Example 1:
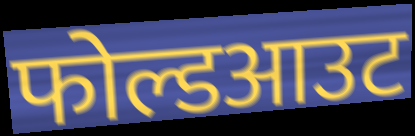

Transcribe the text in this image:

फोल्डआउट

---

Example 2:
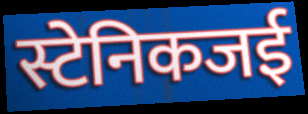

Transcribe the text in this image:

स्टेनिकजई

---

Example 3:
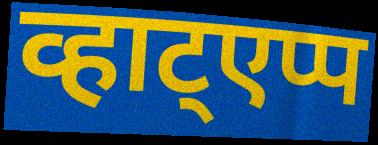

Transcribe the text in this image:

व्हाट्एप्प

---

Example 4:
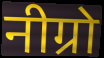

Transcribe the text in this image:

नीग्रो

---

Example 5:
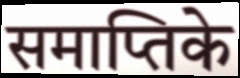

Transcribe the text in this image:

समाप्तिके